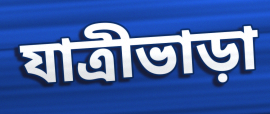
যাত্রীভাড়া